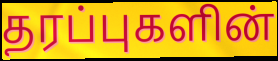
தரப்புகளின்